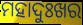
ମହାଦୁଃଖର